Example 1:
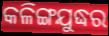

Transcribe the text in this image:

କଳିଙ୍ଗଯୁଦ୍ଧର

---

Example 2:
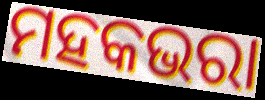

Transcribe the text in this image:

ମହକଭରା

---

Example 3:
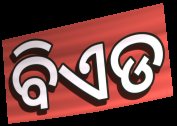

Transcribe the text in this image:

ବିଏଡ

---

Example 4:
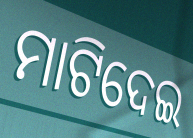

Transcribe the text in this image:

ମାଟିଦେଇ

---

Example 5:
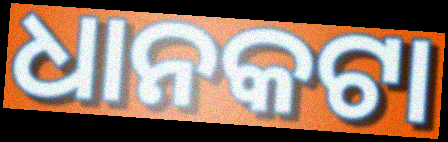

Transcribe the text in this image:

ଧାନକଟା